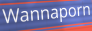
Wannaporn